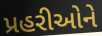
પ્રહરીઓને